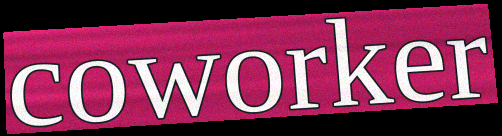
coworker